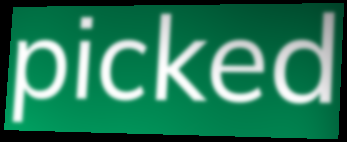
picked